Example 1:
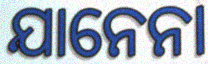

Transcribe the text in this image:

ଯାନେନା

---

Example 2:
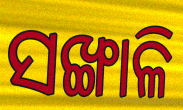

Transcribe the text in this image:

ସଙ୍ଖାଳି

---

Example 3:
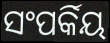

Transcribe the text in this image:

ସଂପର୍କିୟ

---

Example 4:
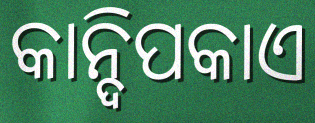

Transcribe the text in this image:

କାନ୍ଦିପକାଏ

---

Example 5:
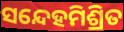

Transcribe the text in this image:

ସନ୍ଦେହମିଶ୍ରିତ